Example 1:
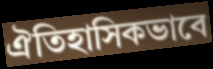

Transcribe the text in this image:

ঐতিহাসিকভাবে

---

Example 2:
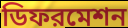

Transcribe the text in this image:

ডিফরমেশন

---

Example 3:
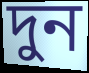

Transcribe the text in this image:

দুন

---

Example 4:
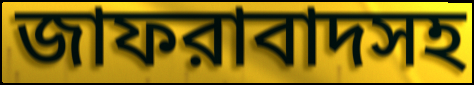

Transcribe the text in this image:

জাফরাবাদসহ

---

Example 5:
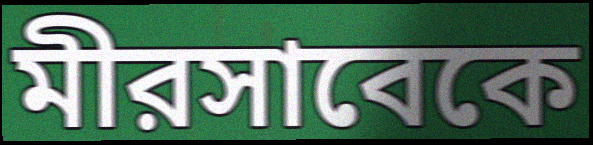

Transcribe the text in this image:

মীরসাবেকে